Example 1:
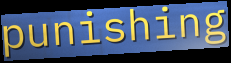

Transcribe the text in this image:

punishing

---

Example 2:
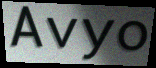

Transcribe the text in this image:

Avyo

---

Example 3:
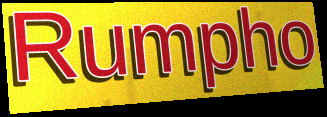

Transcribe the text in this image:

Rumpho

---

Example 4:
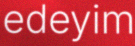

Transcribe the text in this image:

edeyim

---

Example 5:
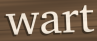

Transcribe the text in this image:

wart